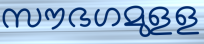
സൗഭഗമുളള